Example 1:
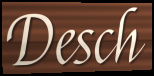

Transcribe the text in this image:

Desch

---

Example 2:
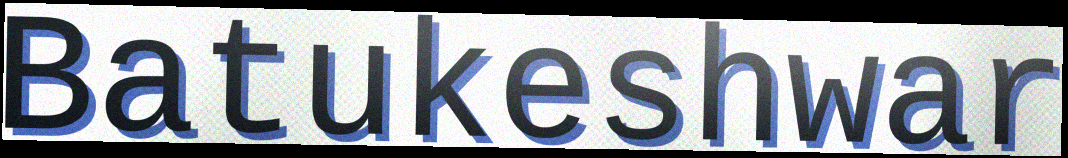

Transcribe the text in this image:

Batukeshwar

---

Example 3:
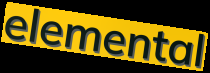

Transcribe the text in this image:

elemental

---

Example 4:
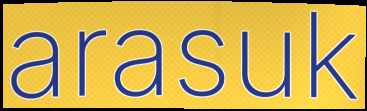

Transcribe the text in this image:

arasuk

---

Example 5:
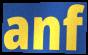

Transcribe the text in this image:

anf